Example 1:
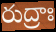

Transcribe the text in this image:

రుద్రాః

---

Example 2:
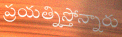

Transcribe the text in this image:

ప్రయత్నిస్తోన్నారు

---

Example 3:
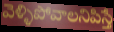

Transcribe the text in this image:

వెళ్ళిపోవాలనిపిస్తే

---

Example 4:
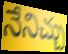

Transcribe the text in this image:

నేనిచ్చు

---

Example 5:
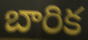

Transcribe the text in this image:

బారిక